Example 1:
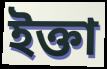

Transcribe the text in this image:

ইক্তা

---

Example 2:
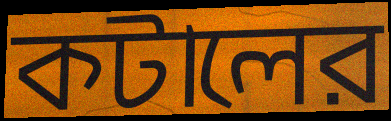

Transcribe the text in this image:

কটালের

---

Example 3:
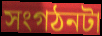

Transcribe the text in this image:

সংগঠনটা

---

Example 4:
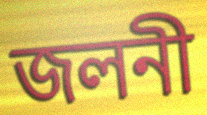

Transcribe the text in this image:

জলনী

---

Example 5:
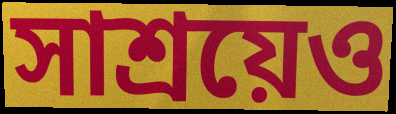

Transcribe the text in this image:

সাশ্রয়েও